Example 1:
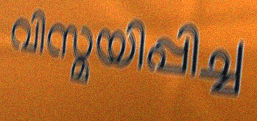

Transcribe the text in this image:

വിസ്മയിപ്പിച്ച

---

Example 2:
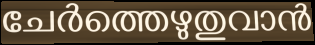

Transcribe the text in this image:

ചേർത്തെഴുതുവാൻ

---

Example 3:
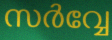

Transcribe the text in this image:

സർവ്വേ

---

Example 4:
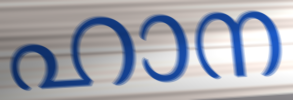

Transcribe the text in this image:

ഹാന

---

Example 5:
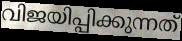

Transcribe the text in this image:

വിജയിപ്പിക്കുന്നത്